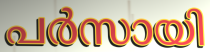
പർസായി